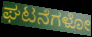
ಘಟನೆಗಳೋ